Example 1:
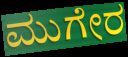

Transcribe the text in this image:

ಮುಗೇರ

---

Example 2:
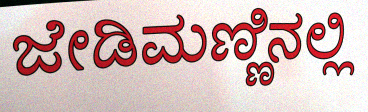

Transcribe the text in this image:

ಜೇಡಿಮಣ್ಣಿನಲ್ಲಿ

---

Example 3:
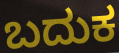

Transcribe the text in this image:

ಬದುಕ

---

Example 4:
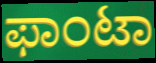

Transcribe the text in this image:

ಫಾಂಟಾ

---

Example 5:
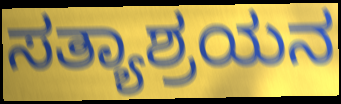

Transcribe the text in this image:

ಸತ್ಯಾಶ್ರಯನ